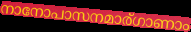
നാനോപാസനമാര്ഗാണാം